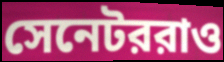
সেনেটররাও